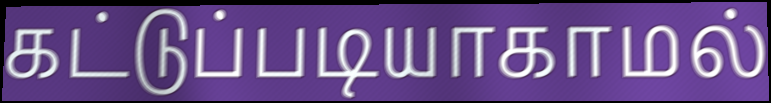
கட்டுப்படியாகாமல்